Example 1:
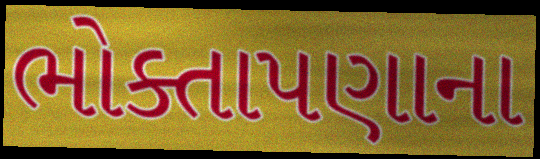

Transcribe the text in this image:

ભોક્તાપણાના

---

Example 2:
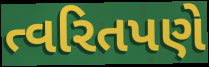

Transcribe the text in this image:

ત્વરિતપણે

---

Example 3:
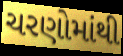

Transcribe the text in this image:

ચરણોમાંથી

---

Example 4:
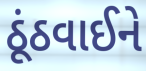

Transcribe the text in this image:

ઠૂંઠવાઈને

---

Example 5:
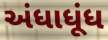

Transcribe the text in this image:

અંધાધૂંધ